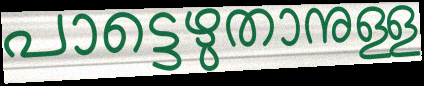
പാട്ടെഴുതാനുള്ള